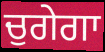
ਚੁਗੇਗਾ